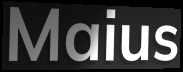
Maius